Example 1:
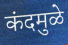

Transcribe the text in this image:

कंदमुळे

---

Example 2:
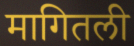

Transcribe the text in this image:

मागितली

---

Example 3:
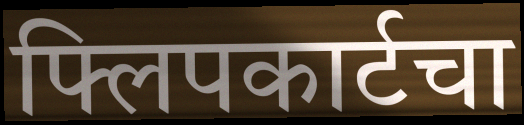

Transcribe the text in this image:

फ्लिपकार्टचा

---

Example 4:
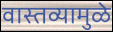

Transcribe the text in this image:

वास्तव्यामुळे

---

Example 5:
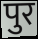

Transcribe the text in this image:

पुर